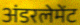
अंडरलेमेंट